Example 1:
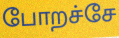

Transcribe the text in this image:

போறச்சே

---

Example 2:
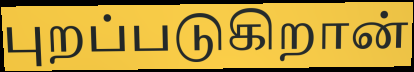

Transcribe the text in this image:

புறப்படுகிறான்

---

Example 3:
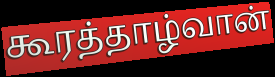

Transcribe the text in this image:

கூரத்தாழ்வான்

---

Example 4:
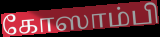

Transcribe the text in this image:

கோஸாம்பி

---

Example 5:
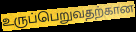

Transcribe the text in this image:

உருப்பெறுவதற்கான